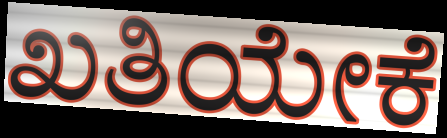
ಖತಿಯೇಕೆ